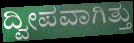
ದ್ವೀಪವಾಗಿತ್ತು